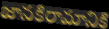
జానకిరామానికి